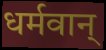
धर्मवान्